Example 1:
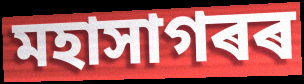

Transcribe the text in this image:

মহাসাগৰৰ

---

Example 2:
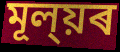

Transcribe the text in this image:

মূল্য়ৰ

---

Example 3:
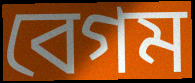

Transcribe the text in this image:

বেগম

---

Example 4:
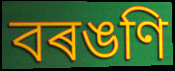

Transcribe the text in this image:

বৰঙণি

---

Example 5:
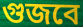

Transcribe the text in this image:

গুজবে